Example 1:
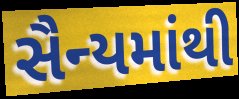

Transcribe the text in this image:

સૈન્યમાંથી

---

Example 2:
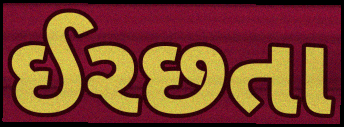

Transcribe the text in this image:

ઈરછતા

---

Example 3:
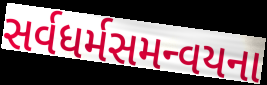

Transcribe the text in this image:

સર્વધર્મસમન્વયના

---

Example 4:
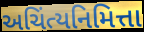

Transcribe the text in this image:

અચિંત્યનિમિત્તા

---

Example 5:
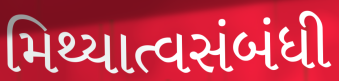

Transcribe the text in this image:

મિથ્યાત્વસંબંધી